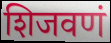
शिजवणं